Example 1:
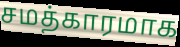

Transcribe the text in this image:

சமத்காரமாக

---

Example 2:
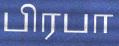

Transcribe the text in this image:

பிரபா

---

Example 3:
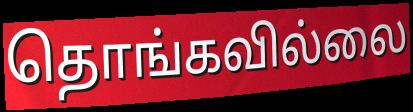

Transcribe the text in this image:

தொங்கவில்லை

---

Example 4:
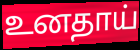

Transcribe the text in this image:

உனதாய்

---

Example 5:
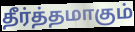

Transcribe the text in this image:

தீர்த்தமாகும்